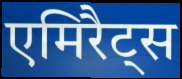
एमिरैट्स